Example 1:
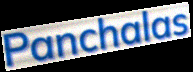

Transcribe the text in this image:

Panchalas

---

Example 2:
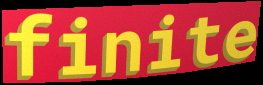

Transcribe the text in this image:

finite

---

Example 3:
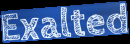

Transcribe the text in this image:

Exalted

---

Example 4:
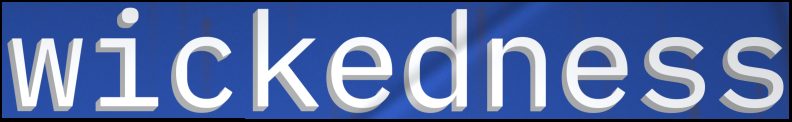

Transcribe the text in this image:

wickedness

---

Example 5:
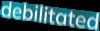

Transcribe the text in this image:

debilitated